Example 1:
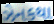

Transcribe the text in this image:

ઝેનકથા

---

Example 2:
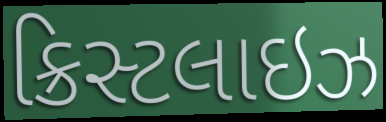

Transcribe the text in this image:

ક્રિસ્ટલાઇઝ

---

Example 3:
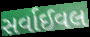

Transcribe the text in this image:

સર્વાઈવલ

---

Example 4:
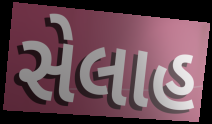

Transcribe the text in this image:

સેલાહ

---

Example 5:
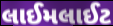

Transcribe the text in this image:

લાઈમલાઈટ